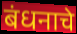
बंधनाचे